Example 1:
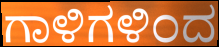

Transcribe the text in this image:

ಗಾಳಿಗಳಿಂದ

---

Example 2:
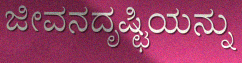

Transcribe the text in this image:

ಜೀವನದೃಷ್ಟಿಯನ್ನು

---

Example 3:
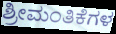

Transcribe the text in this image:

ಶ್ರೀಮಂತಿಕೆಗಳ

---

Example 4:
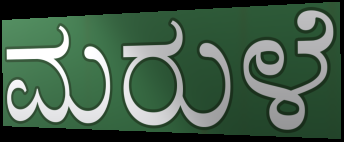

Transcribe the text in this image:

ಮರುಳೆ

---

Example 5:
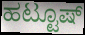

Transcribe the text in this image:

ಹಟ್ಟೂಷ್